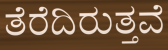
ತೆರೆದಿರುತ್ತವೆ